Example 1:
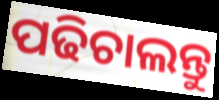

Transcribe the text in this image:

ପଢିଚାଲନ୍ତୁ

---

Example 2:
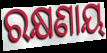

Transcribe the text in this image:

ରକ୍ଷଣାୟ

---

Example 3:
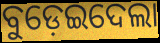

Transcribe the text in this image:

ବୁଡ଼େଇଦେଲା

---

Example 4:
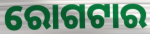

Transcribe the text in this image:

ରୋଗଟାର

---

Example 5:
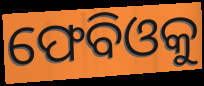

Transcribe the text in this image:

ଫେବିଓକୁ